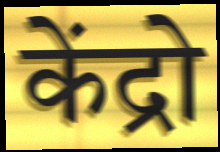
केंद्रो